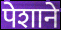
पेशाने